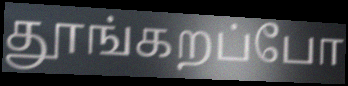
தூங்கறப்போ